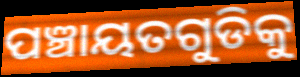
ପଞ୍ଚାୟତଗୁଡିକୁ